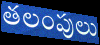
తలంపులు